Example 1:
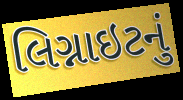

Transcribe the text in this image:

લિગ્નાઇટનું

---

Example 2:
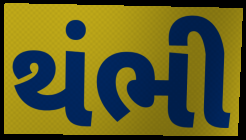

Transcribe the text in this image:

થંભી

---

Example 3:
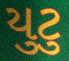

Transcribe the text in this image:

યુટુ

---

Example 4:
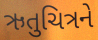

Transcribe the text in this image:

ઋતુચિત્રને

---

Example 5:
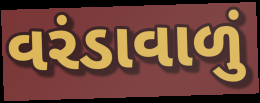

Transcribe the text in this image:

વરંડાવાળું